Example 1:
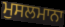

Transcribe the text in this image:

ਮੁਸਲਮਾਨਾ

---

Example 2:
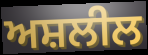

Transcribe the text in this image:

ਅਸ਼ਲੀਲ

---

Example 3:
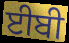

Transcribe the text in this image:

ਈਬੀ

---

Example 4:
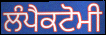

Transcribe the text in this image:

ਲੰਪੈਕਟੋਮੀ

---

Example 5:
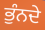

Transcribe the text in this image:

ਭੁੰਨਦੇ